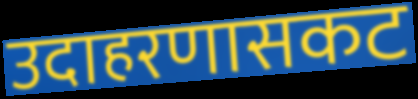
उदाहरणासकट